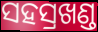
ସହସ୍ରଖଣ୍ଡ